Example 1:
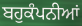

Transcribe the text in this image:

ਬਹੁਕੰਪਨੀਆਂ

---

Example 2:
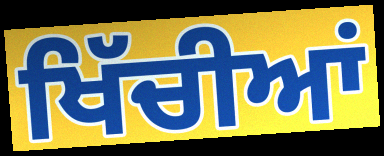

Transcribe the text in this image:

ਖਿੱਚੀਆਂ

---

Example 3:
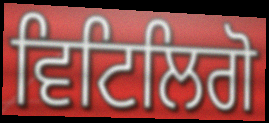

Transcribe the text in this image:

ਵਿਟਿਲਿਗੋ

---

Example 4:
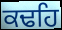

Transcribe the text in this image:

ਕਢਹਿ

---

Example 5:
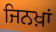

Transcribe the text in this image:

ਜਿਨਖ਼ਾਂ